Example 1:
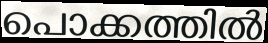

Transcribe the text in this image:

പൊക്കത്തിൽ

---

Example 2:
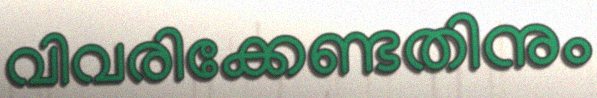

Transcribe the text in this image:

വിവരിക്കേണ്ടതിനും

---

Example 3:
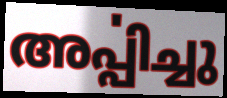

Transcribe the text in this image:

അൎപ്പിച്ചു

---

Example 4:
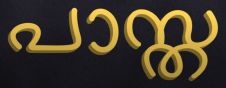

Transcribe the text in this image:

പാസ്ത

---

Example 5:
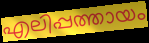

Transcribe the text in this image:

എലിപ്പത്തായം